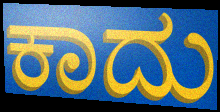
ಕಾದು